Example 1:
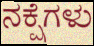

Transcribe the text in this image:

ನಕ್ಷೆಗಳು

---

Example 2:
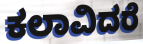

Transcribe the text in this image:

ಕಲಾವಿದರೆ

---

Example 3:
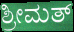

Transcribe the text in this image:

ಶ್ರೀಮತ್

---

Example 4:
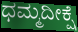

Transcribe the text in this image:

ಧಮ್ಮದೀಕ್ಷೆ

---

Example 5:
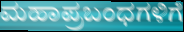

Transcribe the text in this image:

ಮಹಾಪ್ರಬಂಧಗಳಿಗೆ